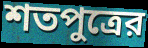
শতপুত্রের